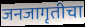
जनजागृतीचा